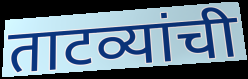
ताटव्यांची